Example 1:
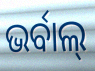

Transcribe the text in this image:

ଭର୍ବାଲ୍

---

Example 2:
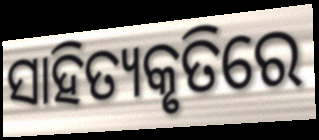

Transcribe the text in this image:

ସାହିତ୍ୟକୃତିରେ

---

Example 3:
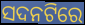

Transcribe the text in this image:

ସଦନଟିରେ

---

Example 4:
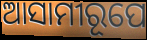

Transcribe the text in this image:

ଆସାମୀରୂପେ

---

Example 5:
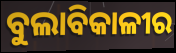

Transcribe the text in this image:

ବୁଲାବିକାଳୀର